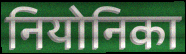
नियोनिका